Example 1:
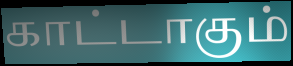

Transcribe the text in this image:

காட்டாகும்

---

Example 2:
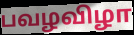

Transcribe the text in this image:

பவழவிழா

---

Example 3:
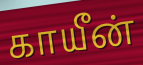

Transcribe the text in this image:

காயீன்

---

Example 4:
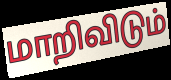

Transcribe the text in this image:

மாறிவிடும்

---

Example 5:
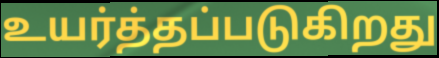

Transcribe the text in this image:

உயர்த்தப்படுகிறது